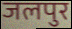
जलपुर